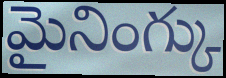
మైనింగ్కు